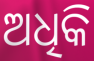
ଅଧିକି